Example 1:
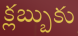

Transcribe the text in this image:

క్లబ్బుకు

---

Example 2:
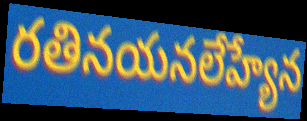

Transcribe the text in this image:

రతినయనలేహ్యేన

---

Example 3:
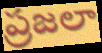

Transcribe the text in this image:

ప్రజలా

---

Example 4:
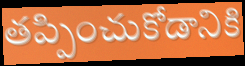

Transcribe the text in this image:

తప్పించుకోడానికి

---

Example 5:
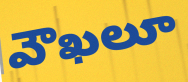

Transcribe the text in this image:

వౌఖలూ